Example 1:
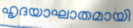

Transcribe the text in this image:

ഹൃദയാഘാതമായി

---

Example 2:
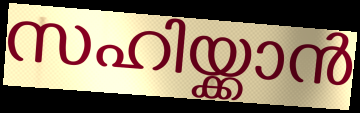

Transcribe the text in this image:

സഹിയ്ക്കാൻ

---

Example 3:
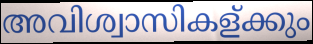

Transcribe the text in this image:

അവിശ്വാസികള്ക്കും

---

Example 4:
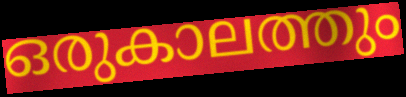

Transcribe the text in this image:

ഒരുകാലത്തും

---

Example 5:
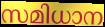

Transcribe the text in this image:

സമിധാന